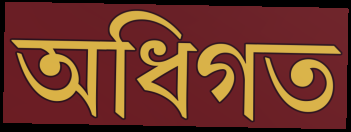
অধিগত